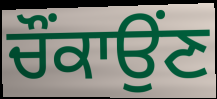
ਚੌਂਕਾਉਂਣ